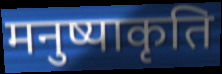
मनुष्याकृति